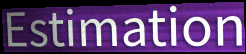
Estimation